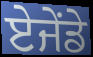
ਏਜੇਂਡੇ